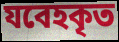
যবেহকৃত